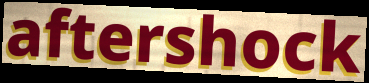
aftershock